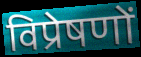
विप्रेषणों